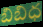
బిబిధ